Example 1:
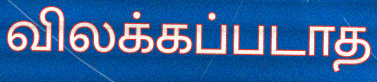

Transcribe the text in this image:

விலக்கப்படாத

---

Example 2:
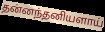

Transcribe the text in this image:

தன்னந்தனியளாய்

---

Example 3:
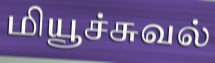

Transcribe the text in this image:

மியூச்சுவல்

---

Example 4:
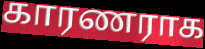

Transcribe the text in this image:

காரணராக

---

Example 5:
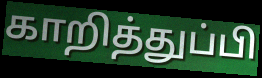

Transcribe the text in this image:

காறித்துப்பி